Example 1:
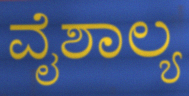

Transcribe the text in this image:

ವೈಶಾಲ್ಯ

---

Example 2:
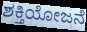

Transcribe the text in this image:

ಶಕ್ತಿಯೋಜನೆ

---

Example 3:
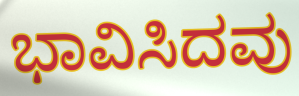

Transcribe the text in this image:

ಭಾವಿಸಿದವು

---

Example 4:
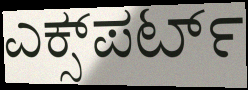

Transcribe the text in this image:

ಎಕ್ಸ್‌ಪರ್ಟ್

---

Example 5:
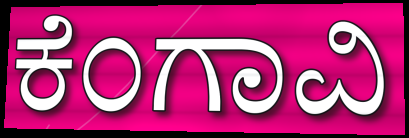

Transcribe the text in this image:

ಕೆಂಗಾವಿ